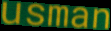
usman